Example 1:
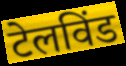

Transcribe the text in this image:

टेलविंड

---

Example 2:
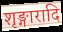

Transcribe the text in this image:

शृङ्गारादि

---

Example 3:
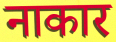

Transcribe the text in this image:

नाकार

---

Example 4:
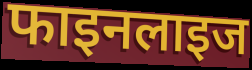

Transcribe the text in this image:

फाइनलाइज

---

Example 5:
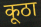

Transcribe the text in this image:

कूठा